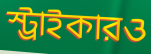
স্ট্রাইকারও